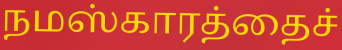
நமஸ்காரத்தைச்